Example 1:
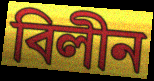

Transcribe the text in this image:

বিলীন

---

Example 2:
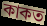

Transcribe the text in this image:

কাকত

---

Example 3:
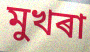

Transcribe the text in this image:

মুখৰা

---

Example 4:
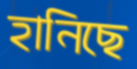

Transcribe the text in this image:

হানিছে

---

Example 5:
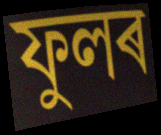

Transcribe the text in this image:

ফুলৰ